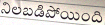
నిలబడిపోయింది